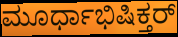
ಮೂರ್ಧಾಭಿಷಿಕ್ತರ್